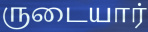
ருடையார்